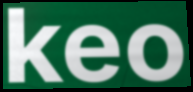
keo